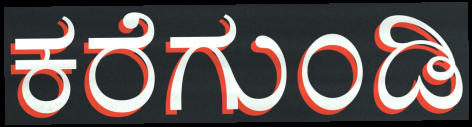
ಕರೆಗುಂಡಿ